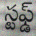
స్టఫ్డ్